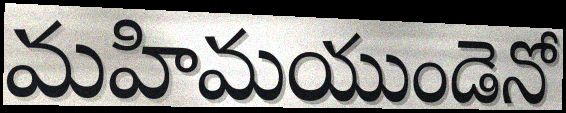
మహిమయుండెనో